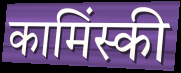
कामिंस्की